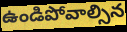
ఉండిపోవాల్సిన